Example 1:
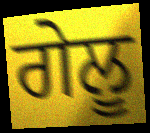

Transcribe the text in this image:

ਗੇਲੂ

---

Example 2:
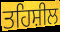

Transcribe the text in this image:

ਤਹਿਸ਼ੀਲ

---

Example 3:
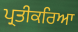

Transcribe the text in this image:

ਪ੍ਰਤੀਕਰਿਆ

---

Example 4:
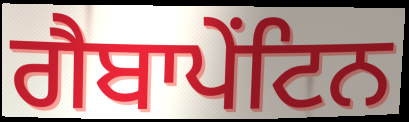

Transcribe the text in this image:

ਗੈਬਾਪੇਂਟਿਨ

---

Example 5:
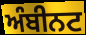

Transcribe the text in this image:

ਅੰਬੀਨਟ